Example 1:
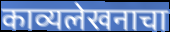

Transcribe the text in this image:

काव्यलेखनाचा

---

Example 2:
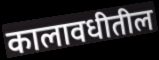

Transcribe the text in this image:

कालावधीतील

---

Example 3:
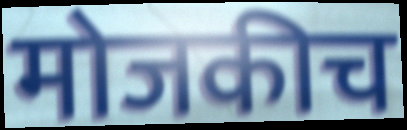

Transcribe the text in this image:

मोजकीच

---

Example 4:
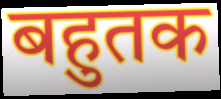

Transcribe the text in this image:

बहुतक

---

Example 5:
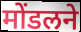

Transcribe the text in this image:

मोंडलने